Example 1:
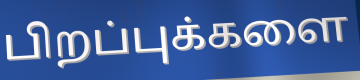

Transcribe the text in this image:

பிறப்புக்களை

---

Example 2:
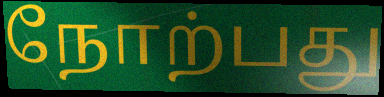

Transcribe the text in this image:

நோற்பது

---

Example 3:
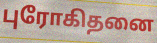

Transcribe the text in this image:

புரோகிதனை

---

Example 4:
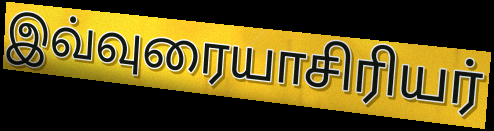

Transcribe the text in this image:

இவ்வுரையாசிரியர்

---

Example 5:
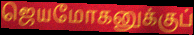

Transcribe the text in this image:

ஜெயமோகனுக்குப்